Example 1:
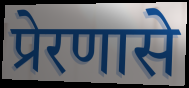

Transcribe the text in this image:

प्रेरणासे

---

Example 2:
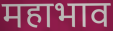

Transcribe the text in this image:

महाभाव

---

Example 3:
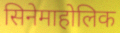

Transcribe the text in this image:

सिनेमाहोलिक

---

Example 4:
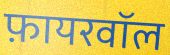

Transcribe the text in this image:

फ़ायरवॉल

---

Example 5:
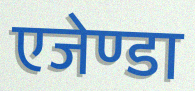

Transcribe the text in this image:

एजेण्डा